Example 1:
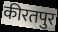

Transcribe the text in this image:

कीरतपुर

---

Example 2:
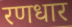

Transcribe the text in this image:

रणधार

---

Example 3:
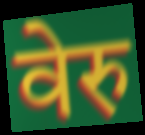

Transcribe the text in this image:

वेरु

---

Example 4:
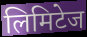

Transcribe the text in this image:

लिमिटेज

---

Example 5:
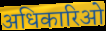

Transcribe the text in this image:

अधिकारिओ